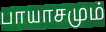
பாயாசமும்